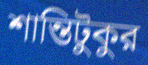
শান্তিটুকুর